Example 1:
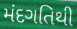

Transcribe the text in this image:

મંદગતિથી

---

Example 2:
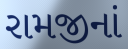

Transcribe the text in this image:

રામજીનાં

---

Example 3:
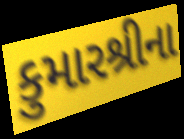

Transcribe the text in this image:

કુમારશ્રીના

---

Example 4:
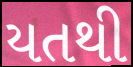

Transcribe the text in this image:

યતથી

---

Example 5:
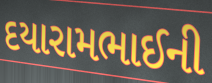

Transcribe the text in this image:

દયારામભાઈની